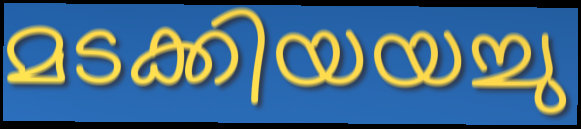
മടക്കിയയച്ചു